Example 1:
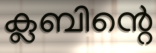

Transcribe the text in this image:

ക്ലബിന്റെ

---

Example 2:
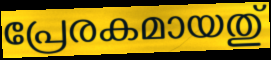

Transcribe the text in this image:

പ്രേരകമായതു്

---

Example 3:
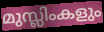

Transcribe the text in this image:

മുസ്ലിംകളും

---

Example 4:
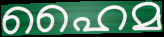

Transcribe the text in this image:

ഹൈമ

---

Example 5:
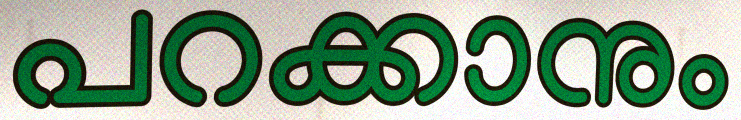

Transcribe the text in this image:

പറക്കാനും